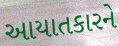
આયાતકારને